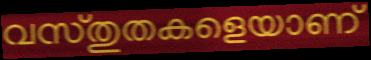
വസ്തുതകളെയാണ്